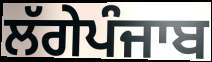
ਲੱਗੇਪੰਜਾਬ